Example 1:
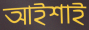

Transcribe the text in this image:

আইশাই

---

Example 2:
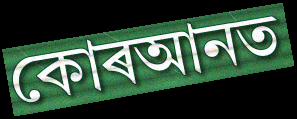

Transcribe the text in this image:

কোৰআনত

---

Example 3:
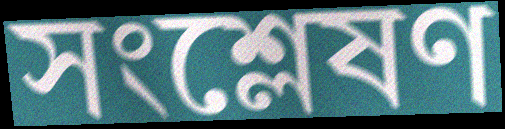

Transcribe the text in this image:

সংশ্লেষণ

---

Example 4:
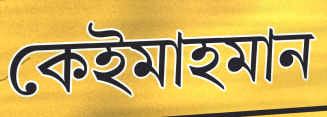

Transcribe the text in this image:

কেইমাহমান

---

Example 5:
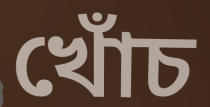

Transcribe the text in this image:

খোঁচ